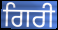
ਗਿਰੀ